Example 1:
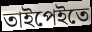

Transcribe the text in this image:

তাইপেইতে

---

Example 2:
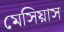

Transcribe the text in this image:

মেসিয়াস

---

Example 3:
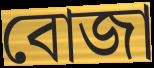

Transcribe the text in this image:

বোজা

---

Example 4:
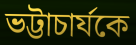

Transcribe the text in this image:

ভট্টাচার্যকে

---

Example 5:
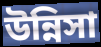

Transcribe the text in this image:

উন্নিসা